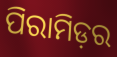
ପିରାମିଡ଼ର